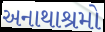
અનાથાશ્રમો